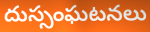
దుస్సంఘటనలు